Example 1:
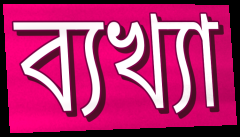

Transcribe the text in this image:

ব্যখ্যা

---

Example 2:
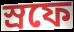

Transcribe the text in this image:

স্রফে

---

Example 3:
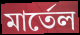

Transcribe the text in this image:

মার্তেল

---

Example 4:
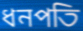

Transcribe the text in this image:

ধনপতি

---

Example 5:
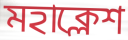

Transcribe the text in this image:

মহাক্লেশ